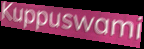
Kuppuswami